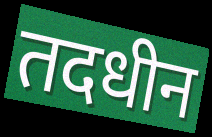
तदधीन